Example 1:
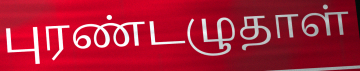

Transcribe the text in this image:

புரண்டழுதாள்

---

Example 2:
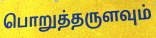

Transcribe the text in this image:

பொறுத்தருளவும்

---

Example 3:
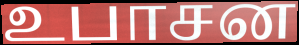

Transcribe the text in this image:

உபாசன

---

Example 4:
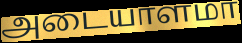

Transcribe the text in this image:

அடையாளமா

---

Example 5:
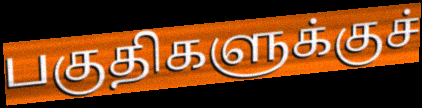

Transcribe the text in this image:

பகுதிகளுக்குச்